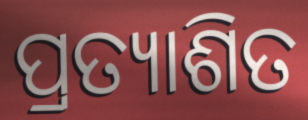
ପ୍ରତ୍ୟାଶିତ